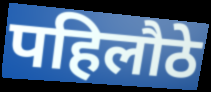
पहिलौठे